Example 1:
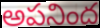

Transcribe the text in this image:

అపనింద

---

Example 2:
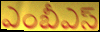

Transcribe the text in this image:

ఎంబీఎస్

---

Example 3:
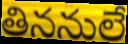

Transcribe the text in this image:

తిననులే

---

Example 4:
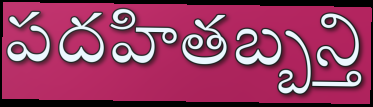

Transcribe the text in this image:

పదహితబ్బన్తి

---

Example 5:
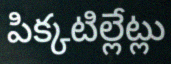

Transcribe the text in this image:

పిక్కటిల్లేట్లు